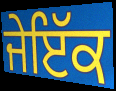
ਜੇਇੱਕ